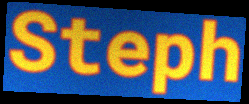
Steph